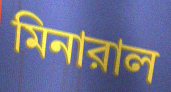
মিনারাল